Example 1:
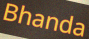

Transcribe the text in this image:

Bhanda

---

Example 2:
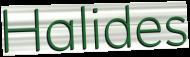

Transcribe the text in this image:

Halides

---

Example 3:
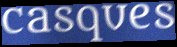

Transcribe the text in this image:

casques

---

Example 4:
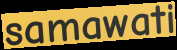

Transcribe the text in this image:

samawati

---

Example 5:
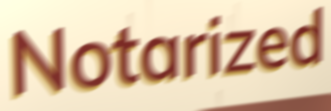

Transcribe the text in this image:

Notarized